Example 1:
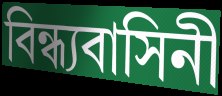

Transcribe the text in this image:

বিন্ধ্যবাসিনী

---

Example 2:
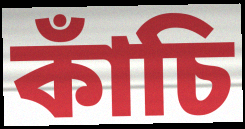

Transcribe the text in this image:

কাঁচি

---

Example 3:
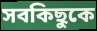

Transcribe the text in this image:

সবকিছুকে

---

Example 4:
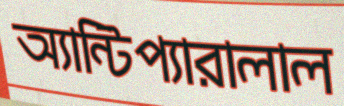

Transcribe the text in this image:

অ্যান্টিপ্যারালাল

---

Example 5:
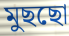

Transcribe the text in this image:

মুছছো